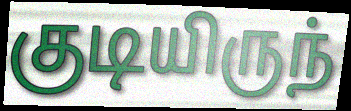
குடியிருந்